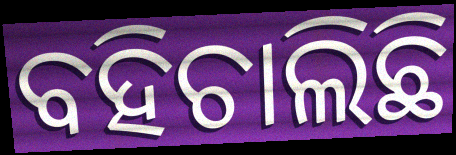
ବହିଚାଲିଛି